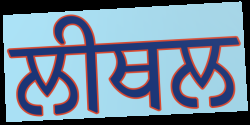
ਲੀਥਲ